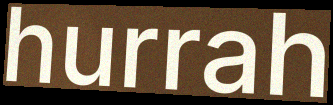
hurrah